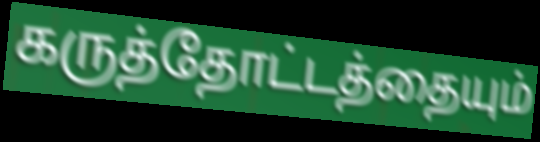
கருத்தோட்டத்தையும்